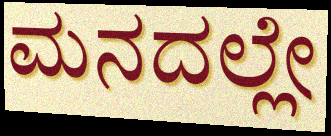
ಮನದಲ್ಲೇ